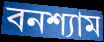
বনশ্যাম